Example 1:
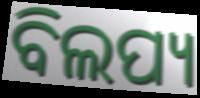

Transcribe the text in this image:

ବିଲପ୍ୟ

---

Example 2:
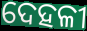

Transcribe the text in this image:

ଦେହଳୀ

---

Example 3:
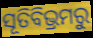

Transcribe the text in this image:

ସୂତିବିଭ୍ରମରୁ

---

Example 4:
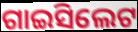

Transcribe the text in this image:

ଗାଇସିଲେଟ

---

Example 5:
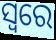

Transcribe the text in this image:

ସ୍ୱରେ